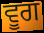
ਵੂਗ